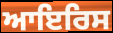
ਆਇਰਿਸ